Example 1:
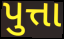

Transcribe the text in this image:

પુત્તા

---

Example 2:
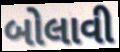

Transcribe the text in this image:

બોલાવી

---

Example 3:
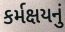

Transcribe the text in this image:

કર્મક્ષયનું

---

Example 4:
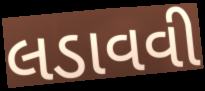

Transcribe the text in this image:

લડાવવી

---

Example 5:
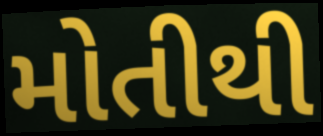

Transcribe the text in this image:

મોતીથી